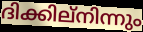
ദിക്കില്നിന്നും